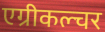
एग्रीकल्चर